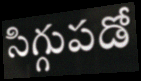
సిగ్గుపడో